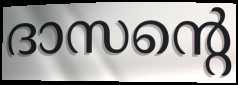
ദാസന്റെ